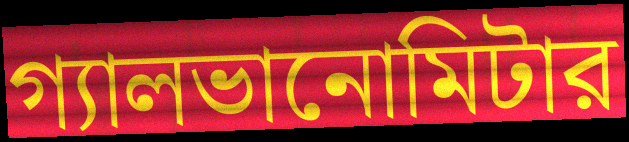
গ্যালভানোমিটার